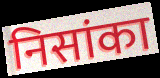
निसांका